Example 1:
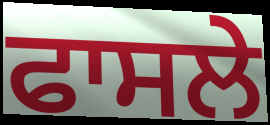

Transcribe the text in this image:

ਫਾਸਲੇ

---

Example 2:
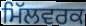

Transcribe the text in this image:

ਮਿੱਲਵਰਕ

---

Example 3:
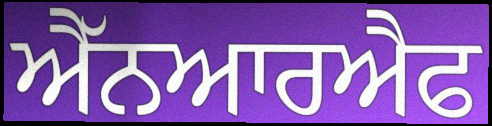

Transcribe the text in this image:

ਐੱਨਆਰਐਫ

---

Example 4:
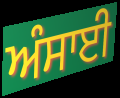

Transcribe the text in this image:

ਅੰਸਾਈ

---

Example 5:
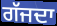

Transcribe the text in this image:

ਗੱਜਦਾ